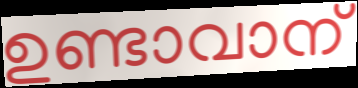
ഉണ്ടാവാന്